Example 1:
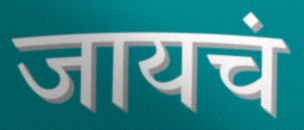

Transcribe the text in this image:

जायचं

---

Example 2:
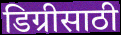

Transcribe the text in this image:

डिग्रीसाठी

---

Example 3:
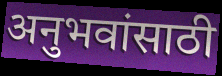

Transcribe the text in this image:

अनुभवांसाठी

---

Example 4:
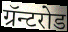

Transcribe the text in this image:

ग्रॅन्टरोड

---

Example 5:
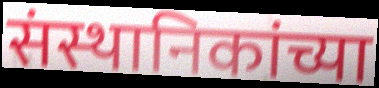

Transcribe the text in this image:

संस्थानिकांच्या